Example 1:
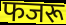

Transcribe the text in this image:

फजरू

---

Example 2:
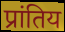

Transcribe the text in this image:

प्रांतिय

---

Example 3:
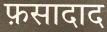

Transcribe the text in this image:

फ़सादाद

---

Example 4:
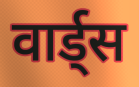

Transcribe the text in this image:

वार्ड्स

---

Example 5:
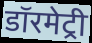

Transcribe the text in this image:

डॉरमेट्री